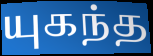
யுகந்த